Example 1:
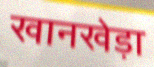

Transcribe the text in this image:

खानखेड़ा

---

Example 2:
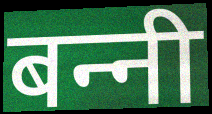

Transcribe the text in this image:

बन्नी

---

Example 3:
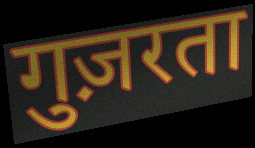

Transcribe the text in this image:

गुज़रता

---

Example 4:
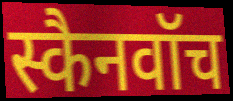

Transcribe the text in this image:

स्कैनवॉच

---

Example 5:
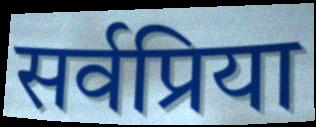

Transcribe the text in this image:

सर्वप्रिया